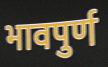
भावपुर्ण